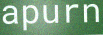
apurn